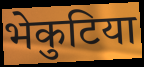
भेकुटिया